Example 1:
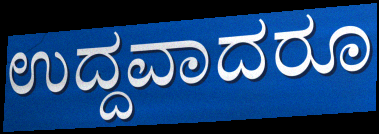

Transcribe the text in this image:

ಉದ್ದವಾದರೂ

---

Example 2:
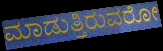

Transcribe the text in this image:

ಮಾಡುತ್ತಿರುವರೋ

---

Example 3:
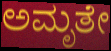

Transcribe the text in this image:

ಅಮೃತೇ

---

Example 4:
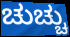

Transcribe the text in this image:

ಚುಚ್ಚು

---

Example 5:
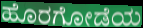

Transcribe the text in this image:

ಹೊರಗೋಡೆಯ